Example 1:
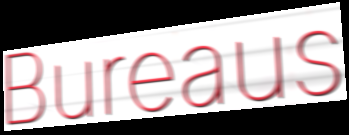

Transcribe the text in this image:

Bureaus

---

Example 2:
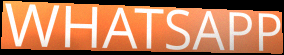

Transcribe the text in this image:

WHATSAPP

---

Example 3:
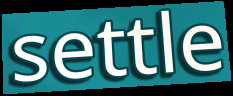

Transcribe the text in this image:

settle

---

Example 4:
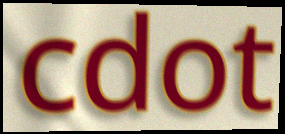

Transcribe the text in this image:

cdot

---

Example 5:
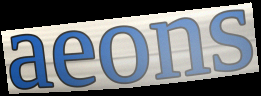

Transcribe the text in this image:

aeons